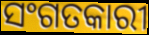
ସଂଗତକାରୀ